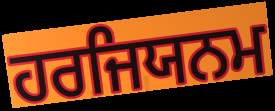
ਹਰਜਿਯਨਮ